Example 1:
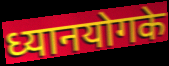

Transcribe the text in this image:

ध्यानयोगके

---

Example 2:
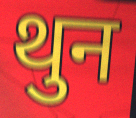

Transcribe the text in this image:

थुन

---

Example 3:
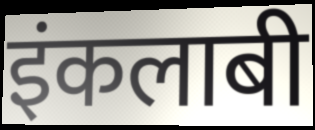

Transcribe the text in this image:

इंकलाबी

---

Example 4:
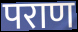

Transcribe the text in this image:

पराण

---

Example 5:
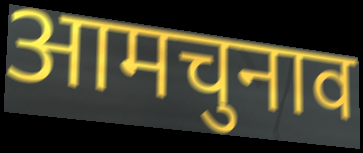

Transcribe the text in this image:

आमचुनाव